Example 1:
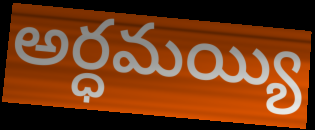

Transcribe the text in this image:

అర్ధమయ్యి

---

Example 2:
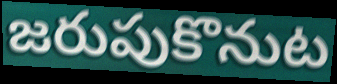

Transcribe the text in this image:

జరుపుకొనుట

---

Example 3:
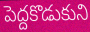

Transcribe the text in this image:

పెద్దకొడుకుని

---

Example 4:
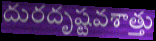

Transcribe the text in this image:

దురదృష్టవశాత్తు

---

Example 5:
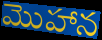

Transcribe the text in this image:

మొహాన